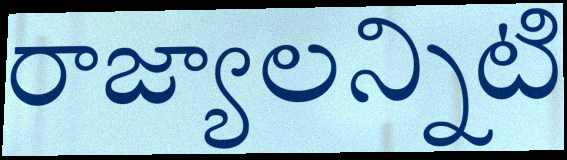
రాజ్యాలన్నిటి